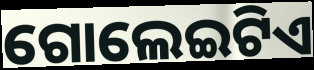
ଗୋଲେଇଟିଏ